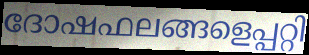
ദോഷഫലങ്ങളെപ്പറ്റി